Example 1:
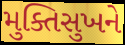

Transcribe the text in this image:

મુક્તિસુખને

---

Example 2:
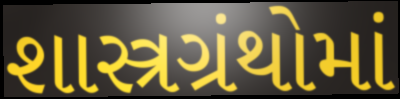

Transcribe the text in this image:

શાસ્ત્રગ્રંથોમાં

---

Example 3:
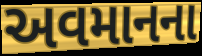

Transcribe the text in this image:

અવમાનના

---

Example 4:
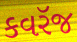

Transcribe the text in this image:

કવરૅજ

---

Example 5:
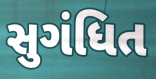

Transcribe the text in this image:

સુગંધિત